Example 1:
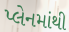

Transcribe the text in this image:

પ્લેનમાંથી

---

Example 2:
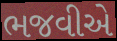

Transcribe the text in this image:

ભજવીએ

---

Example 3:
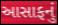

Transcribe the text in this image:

આસાફનું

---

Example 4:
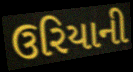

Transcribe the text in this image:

ઉરિયાની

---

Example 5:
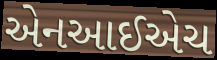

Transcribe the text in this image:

એનઆઈએચ